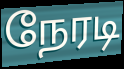
நேரடி